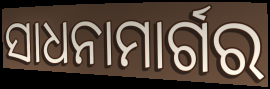
ସାଧନାମାର୍ଗର